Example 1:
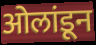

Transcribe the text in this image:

ओलांडून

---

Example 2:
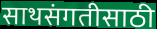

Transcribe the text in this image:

साथसंगतीसाठी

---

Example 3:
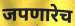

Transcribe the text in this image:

जपणारेच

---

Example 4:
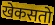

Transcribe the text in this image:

खेकसतो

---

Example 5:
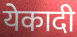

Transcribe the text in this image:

येकादी